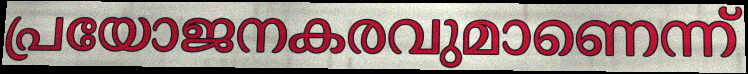
പ്രയോജനകരവുമാണെന്ന്